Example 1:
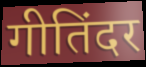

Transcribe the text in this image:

गीतिंदर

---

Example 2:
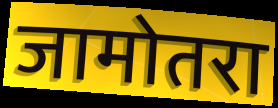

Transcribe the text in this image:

जामोतरा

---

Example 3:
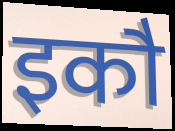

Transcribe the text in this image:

इकौ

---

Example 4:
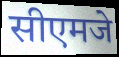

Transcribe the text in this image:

सीएमजे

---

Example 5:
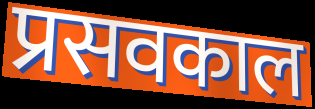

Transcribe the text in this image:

प्रसवकाल